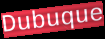
Dubuque